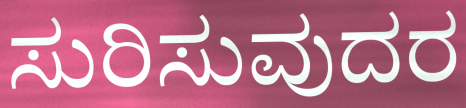
ಸುರಿಸುವುದರ